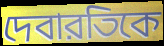
দেবারতিকে